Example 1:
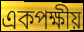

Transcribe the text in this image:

একপক্ষীয়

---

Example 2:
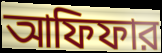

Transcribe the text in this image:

আফিফার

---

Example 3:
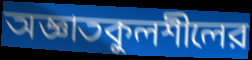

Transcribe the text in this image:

অজ্ঞাতকুলশীলের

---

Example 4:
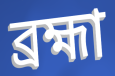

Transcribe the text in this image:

ব্রহ্মা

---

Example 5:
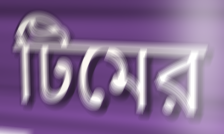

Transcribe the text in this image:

টিমের